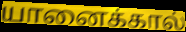
யானைக்கால்